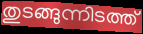
തുടങ്ങുന്നിടത്ത്